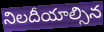
నిలదీయాల్సిన